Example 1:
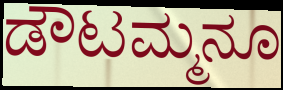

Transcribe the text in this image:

ಡೌಟಮ್ಮನೂ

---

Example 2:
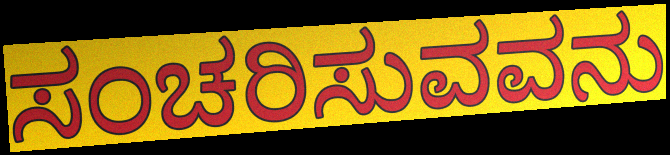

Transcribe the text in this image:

ಸಂಚರಿಸುವವನು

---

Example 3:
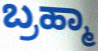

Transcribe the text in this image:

ಬ್ರಹ್ಮಾ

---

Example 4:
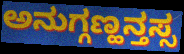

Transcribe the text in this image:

ಅನುಗ್ಗಣ್ಹನ್ತಸ್ಸ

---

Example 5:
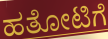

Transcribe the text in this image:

ಹತೋಟಿಗೆ